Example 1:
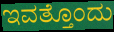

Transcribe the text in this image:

ಇವತ್ತೊಂದು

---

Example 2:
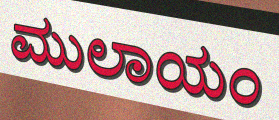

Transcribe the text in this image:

ಮುಲಾಯಂ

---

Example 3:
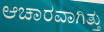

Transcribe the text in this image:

ಆಚಾರವಾಗಿತ್ತು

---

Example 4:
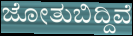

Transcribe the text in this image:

ಜೋತುಬಿದ್ದಿವೆ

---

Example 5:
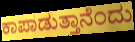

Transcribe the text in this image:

ಕಾಪಾಡುತ್ತಾನೆಂದು